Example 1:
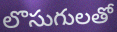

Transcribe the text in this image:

లొసుగులతో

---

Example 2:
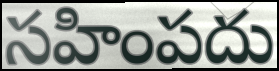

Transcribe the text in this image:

సహింపదు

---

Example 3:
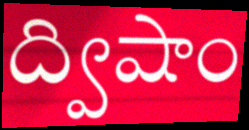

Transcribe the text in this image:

ద్విషాం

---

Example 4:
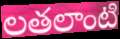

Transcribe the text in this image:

లతలాంటి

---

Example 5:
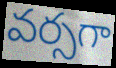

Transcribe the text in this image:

వర్సగా